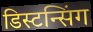
डिस्टन्सिंग